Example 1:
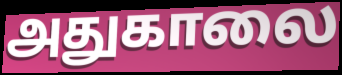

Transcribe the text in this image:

அதுகாலை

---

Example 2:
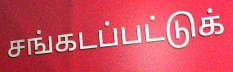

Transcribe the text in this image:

சங்கடப்பட்டுக்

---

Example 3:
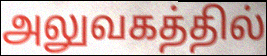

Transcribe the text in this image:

அலுவகத்தில்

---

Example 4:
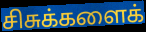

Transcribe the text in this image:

சிசுக்களைக்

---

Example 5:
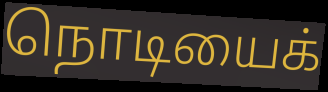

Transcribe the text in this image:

நொடியைக்